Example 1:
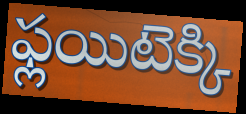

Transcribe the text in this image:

ఫ్లయిటెక్కి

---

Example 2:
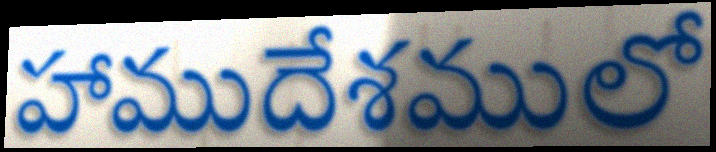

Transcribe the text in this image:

హాముదేశములో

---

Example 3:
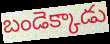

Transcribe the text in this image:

బండెక్కాడు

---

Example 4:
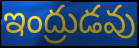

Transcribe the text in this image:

ఇంద్రుడవు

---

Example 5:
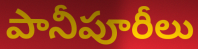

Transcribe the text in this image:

పానీపూరీలు